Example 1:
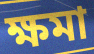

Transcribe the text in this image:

ক্ষমা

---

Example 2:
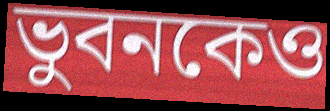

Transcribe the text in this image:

ভুবনকেও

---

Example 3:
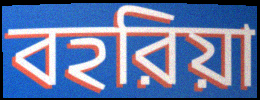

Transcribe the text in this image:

বহরিয়া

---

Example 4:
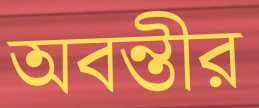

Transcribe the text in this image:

অবন্তীর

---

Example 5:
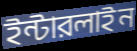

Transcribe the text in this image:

ইন্টারলাইন